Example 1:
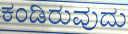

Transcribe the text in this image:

ಕಂಡಿರುವುದು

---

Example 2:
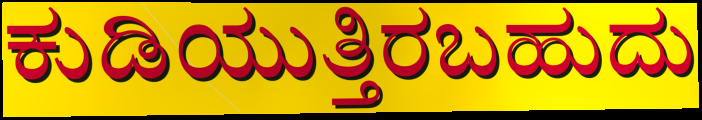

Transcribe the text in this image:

ಕುಡಿಯುತ್ತಿರಬಹುದು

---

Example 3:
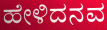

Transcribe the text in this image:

ಹೇಳಿದನವ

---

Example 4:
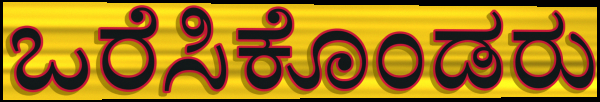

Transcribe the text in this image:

ಒರೆಸಿಕೊಂಡರು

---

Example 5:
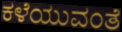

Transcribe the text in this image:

ಕಳೆಯುವಂತೆ